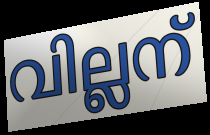
വില്ലന്